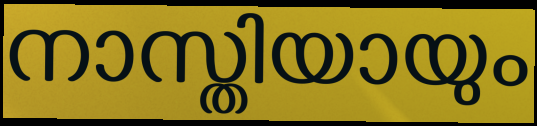
നാസ്തിയായും